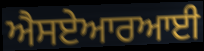
ਐਸਏਆਰਆਈ